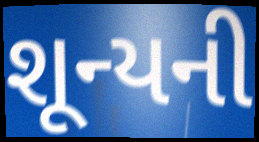
શૂન્યની